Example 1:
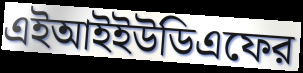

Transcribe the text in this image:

এইআইইউডিএফের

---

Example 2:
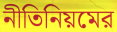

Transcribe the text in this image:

নীতিনিয়মের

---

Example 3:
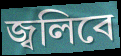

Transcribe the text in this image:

জ্বলিবে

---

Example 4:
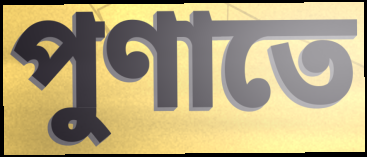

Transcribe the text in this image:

পুণাতে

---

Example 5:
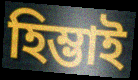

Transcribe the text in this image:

হিম্ভাই